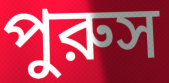
পুরুস